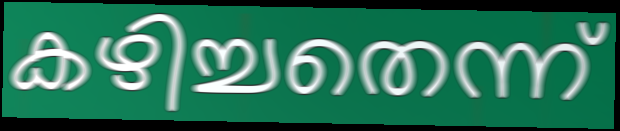
കഴിച്ചതെന്ന്